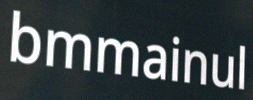
bmmainul